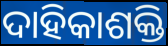
ଦାହିକାଶକ୍ତି